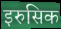
इरुसिक